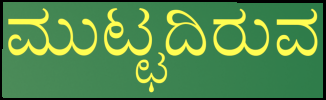
ಮುಟ್ಟದಿರುವ